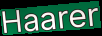
Haarer